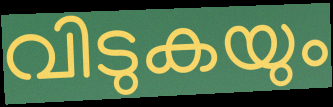
വിടുകയും